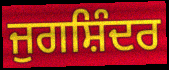
ਜੁਗਸ਼ਿੰਦਰ